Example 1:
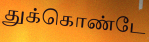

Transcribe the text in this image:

துக்கொண்டே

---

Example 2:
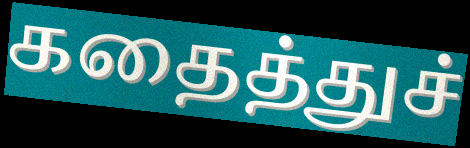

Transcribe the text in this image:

கதைத்துச்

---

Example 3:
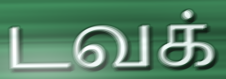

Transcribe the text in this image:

டவக்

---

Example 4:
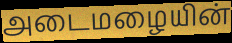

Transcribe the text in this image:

அடைமழையின்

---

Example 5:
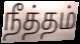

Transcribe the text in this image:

நீத்தம்